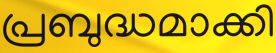
പ്രബുദ്ധമാക്കി